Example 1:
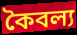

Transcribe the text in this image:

কৈবল্য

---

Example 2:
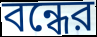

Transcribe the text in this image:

বন্ধের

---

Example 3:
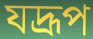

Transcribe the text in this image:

যদ্রূপ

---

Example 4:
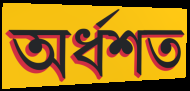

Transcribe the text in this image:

অর্ধশত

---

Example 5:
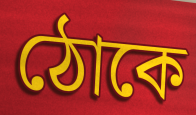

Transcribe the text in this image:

ঠোকে